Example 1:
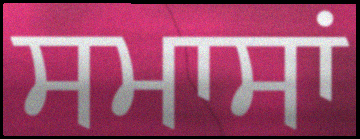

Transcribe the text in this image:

ਸਮਾਸਾਂ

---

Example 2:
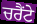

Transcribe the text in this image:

ਚਰੈਂਟੇ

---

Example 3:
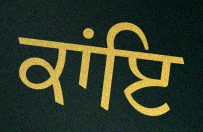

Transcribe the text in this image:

ਕਾਂਇ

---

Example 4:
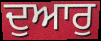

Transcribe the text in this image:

ਦੁਆਰੁ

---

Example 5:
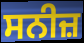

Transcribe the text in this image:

ਸਨੀਜ਼